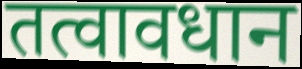
तत्वावधान